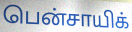
பென்சாயிக்